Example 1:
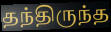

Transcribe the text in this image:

தந்திருந்த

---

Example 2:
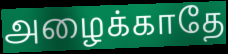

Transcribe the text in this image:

அழைக்காதே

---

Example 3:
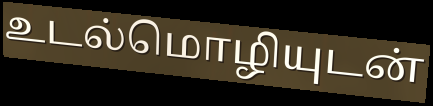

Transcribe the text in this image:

உடல்மொழியுடன்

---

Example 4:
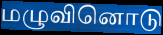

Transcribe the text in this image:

மழுவினொடு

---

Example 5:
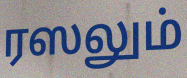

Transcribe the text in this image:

ரஸலும்